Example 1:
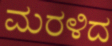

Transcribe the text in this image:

ಮರಳಿದ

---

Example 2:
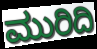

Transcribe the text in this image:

ಮುರಿದಿ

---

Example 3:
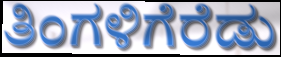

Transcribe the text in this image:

ತಿಂಗಳಿಗೆರೆಡು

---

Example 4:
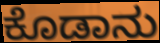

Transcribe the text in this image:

ಕೊಡಾನು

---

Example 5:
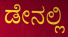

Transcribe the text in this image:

ಡೇನಲ್ಲಿ